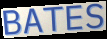
BATES